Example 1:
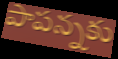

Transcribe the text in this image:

పాపన్నకు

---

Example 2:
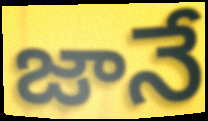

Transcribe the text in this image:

జానే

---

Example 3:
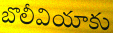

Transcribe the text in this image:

బొలీవియాకు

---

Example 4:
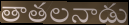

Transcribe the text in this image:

తాతలనాడు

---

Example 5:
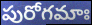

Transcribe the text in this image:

పురోగమాః